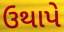
ઉથાપે